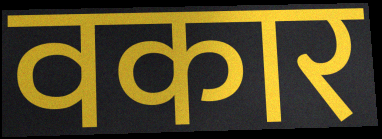
वकार